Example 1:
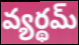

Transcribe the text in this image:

వ్యర్థమ్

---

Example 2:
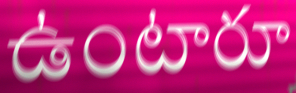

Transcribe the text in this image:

ఉంటారూ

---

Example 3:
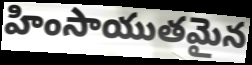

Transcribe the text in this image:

హింసాయుతమైన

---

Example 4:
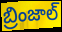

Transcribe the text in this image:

బ్రింజాల్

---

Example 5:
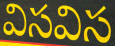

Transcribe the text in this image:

విసవిస